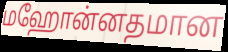
மஹோன்னதமான